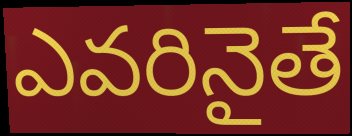
ఎవరినైతే